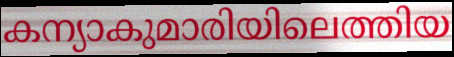
കന്യാകുമാരിയിലെത്തിയ